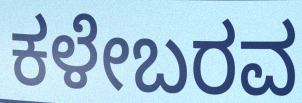
ಕಳೇಬರವ